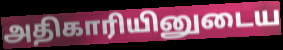
அதிகாரியினுடைய